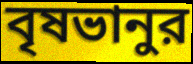
বৃষভানুর